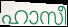
ഹാസീ